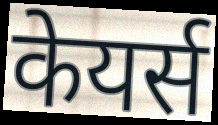
केयर्स